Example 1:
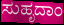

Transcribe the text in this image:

ಸುಹೃದಾಂ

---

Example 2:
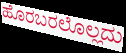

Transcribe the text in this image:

ಹೊರಬರಲೊಲ್ಲದು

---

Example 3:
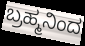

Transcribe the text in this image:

ಬ್ರಹ್ಮನಿಂದ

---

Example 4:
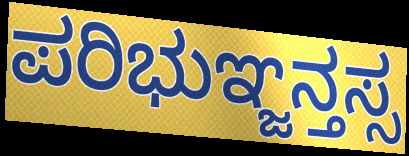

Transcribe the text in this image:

ಪರಿಭುಞ್ಜನ್ತಸ್ಸ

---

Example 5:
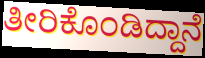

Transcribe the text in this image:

ತೀರಿಕೊಂಡಿದ್ದಾನೆ